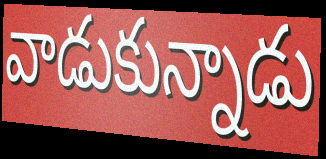
వాడుకున్నాడు